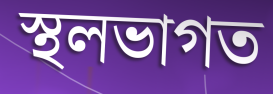
স্থলভাগত